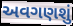
અવગણશું